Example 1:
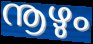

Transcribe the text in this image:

നൂഴും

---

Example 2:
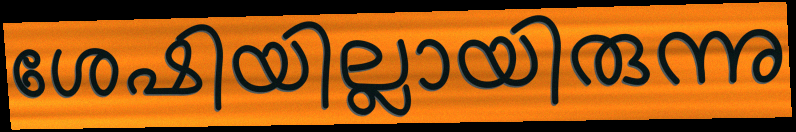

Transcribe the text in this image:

ശേഷിയില്ലായിരുന്നു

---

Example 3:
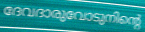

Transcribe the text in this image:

ദേവദാരുവോടുനിന്റെ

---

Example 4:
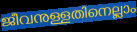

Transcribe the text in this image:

ജീവനുള്ളതിനെല്ലാം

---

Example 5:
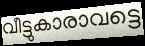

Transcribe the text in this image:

വീട്ടുകാരാവട്ടെ